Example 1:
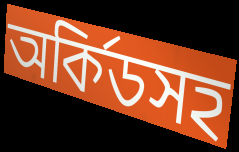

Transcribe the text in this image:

অর্কিডসহ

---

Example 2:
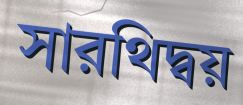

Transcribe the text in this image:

সারথিদ্বয়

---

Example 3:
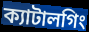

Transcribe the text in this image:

ক্যাটালগিং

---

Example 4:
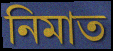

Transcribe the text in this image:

নিমাত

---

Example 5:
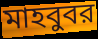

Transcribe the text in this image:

মাহবুবর